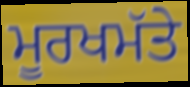
ਮੂਰਖਮੱਤੇ